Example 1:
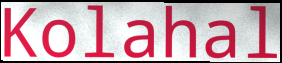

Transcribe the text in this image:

Kolahal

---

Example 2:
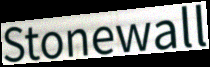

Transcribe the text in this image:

Stonewall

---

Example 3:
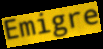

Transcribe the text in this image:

Emigre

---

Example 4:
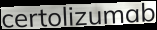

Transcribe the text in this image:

certolizumab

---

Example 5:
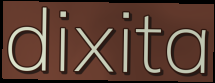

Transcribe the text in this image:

dixita